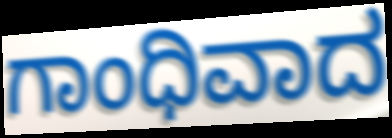
ಗಾಂಧಿವಾದ